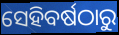
ସେହିବର୍ଷଠାରୁ